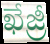
ఖేజ్రీ